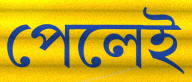
পেলেই